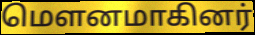
மௌனமாகினர்